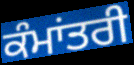
ਕੰਮਾਂਤਰੀ